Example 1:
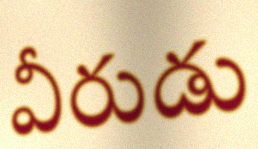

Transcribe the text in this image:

వీరుడు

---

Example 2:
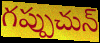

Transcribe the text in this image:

గప్పుచున్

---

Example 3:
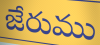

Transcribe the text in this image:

జేరుము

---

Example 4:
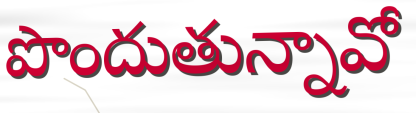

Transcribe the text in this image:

పొందుతున్నావో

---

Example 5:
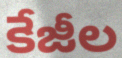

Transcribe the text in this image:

కేజీల